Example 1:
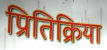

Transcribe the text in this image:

प्रितिक्रिया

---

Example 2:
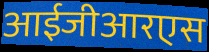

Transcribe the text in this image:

आईजीआरएस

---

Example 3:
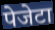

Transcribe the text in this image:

पेजेटा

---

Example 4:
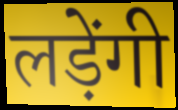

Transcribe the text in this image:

लड़ेंगी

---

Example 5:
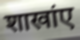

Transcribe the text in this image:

शाखांए